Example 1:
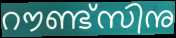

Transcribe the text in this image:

റൗണ്ട്സിനു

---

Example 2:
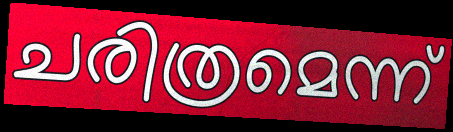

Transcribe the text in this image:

ചരിത്രമെന്ന്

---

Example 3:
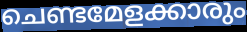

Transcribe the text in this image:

ചെണ്ടമേളക്കാരും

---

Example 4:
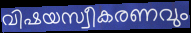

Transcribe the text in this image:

വിഷയസ്വീകരണവും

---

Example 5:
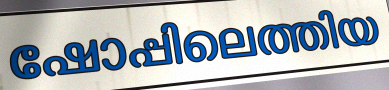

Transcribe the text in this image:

ഷോപ്പിലെത്തിയ